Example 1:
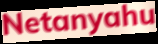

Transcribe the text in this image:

Netanyahu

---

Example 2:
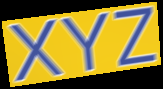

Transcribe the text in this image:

XYZ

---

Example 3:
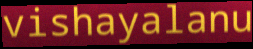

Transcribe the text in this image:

vishayalanu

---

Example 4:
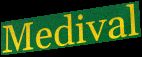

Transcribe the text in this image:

Medival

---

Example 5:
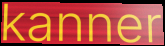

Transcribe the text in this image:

kanner